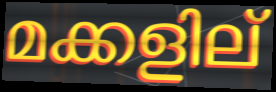
മക്കളില്